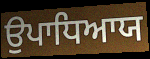
ਉਪਾਧਿਆਯ